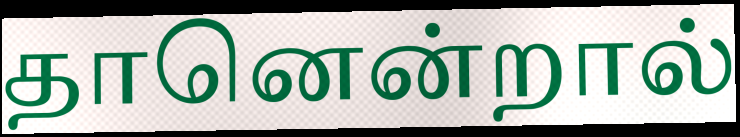
தானென்றால்